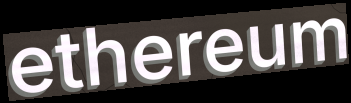
ethereum